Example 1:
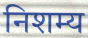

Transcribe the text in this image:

निशम्य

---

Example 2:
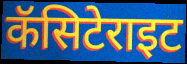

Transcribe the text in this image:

कॅसिटेराइट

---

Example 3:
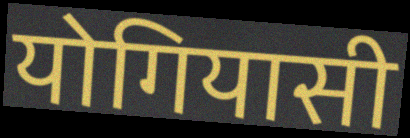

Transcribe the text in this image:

योगियासी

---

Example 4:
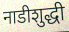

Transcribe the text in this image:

नाडीशुद्धी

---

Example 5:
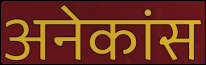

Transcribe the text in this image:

अनेकांस